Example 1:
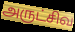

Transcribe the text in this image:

அருட்சிவ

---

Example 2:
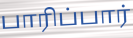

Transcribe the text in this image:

பாரிப்பார்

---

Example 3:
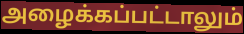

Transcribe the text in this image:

அழைக்கப்பட்டாலும்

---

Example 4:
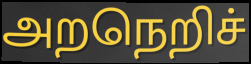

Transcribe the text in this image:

அறநெறிச்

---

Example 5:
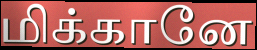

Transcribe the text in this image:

மிக்கானே